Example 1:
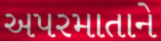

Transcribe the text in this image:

અપરમાતાને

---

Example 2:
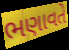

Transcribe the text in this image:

ભણાવતે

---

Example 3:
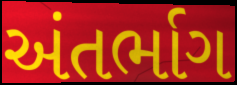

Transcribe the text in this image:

અંતર્ભાગ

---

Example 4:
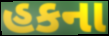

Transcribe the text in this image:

હકના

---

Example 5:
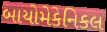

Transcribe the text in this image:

બાયોમેકેનિકલ